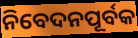
ନିବେଦନପୂର୍ବକ